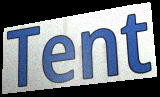
Tent